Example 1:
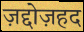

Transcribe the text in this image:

ज़द्दोज़हद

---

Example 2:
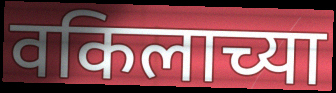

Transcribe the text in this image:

वकिलाच्या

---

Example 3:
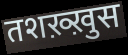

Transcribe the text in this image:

तशख़्ख़ुस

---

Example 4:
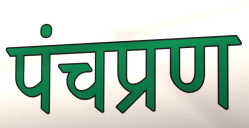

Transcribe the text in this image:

पंचप्रण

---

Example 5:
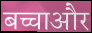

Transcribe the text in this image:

बच्चाऔर